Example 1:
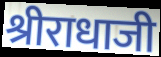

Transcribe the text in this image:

श्रीराधाजी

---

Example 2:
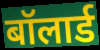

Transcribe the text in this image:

बॉलार्ड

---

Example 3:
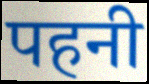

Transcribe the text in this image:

पहनी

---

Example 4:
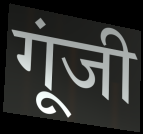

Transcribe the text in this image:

गूंजी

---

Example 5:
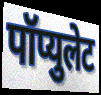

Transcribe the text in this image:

पॉप्युलेट